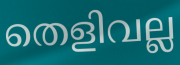
തെളിവല്ല